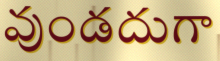
వుండదుగా